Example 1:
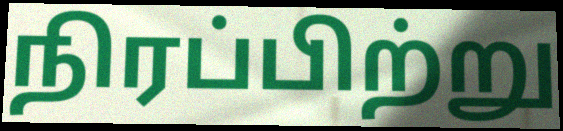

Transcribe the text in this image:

நிரப்பிற்று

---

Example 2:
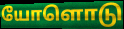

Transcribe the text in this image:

யோளொடு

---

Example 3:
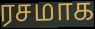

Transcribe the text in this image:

ரசமாக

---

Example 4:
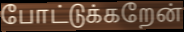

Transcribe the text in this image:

போட்டுக்கறேன்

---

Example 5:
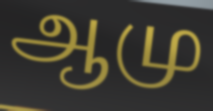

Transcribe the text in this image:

ஆமு